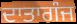
ਦਾਤਾਗੰਜ